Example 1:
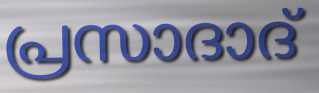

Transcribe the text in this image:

പ്രസാദാദ്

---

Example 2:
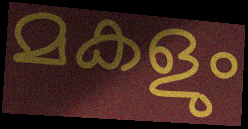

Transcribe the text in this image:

മകളും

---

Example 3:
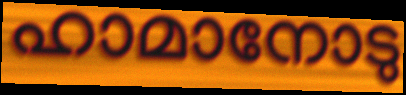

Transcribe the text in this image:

ഹാമാനോടു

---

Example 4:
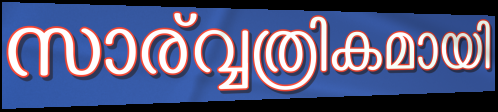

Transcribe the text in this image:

സാര്വ്വത്രികമായി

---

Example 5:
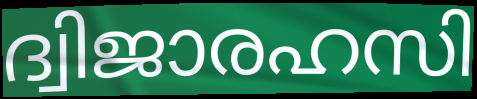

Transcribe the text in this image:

ദ്വിജാരഹസി